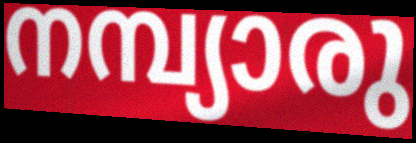
നമ്പ്യാരു